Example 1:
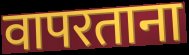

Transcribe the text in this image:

वापरताना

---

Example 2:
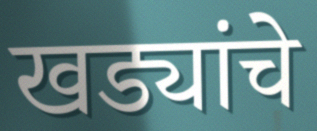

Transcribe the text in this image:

खड्यांचे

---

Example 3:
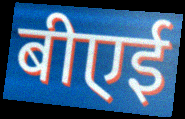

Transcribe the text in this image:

बीएई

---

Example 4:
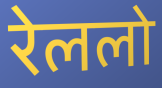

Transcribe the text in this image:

रेललो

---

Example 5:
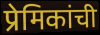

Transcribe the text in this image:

प्रेमिकांची